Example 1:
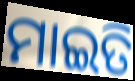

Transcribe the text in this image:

ମାଇତି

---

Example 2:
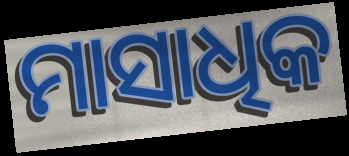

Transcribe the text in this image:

ମାସାଧିକ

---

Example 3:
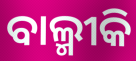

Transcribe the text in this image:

ବାଲ୍ମୀକି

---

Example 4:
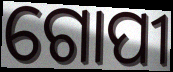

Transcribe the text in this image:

ଗୋପୀ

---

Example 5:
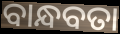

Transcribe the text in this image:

ବାନ୍ଧବତା